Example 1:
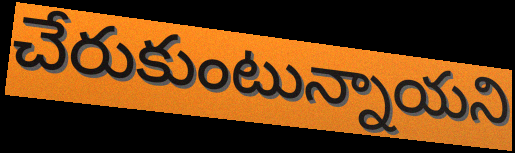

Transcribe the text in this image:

చేరుకుంటున్నాయని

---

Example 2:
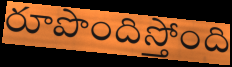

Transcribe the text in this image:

రూపొందిస్తోంది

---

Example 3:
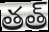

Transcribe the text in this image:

తత్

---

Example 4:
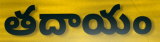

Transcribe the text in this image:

తదాయం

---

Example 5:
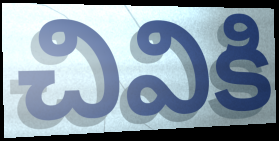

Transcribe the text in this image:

చివికి